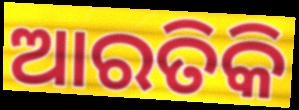
ଆରତିକି